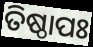
ତିଷ୍ଠାପଃ